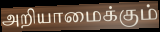
அறியாமைக்கும்